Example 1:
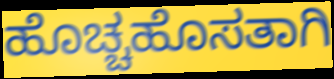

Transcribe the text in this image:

ಹೊಚ್ಚಹೊಸತಾಗಿ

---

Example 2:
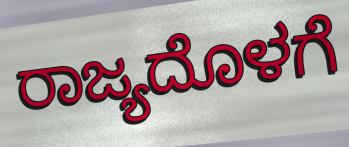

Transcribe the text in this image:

ರಾಜ್ಯದೊಳಗೆ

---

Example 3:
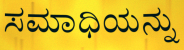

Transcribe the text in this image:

ಸಮಾಧಿಯನ್ನು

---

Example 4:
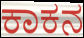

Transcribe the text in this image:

ಕಾಕನ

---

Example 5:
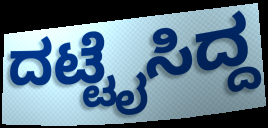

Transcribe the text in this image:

ದಟ್ಟೈಸಿದ್ದ